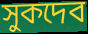
সুকদেব